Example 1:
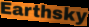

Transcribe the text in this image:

Earthsky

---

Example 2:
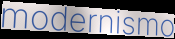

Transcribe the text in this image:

modernismo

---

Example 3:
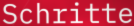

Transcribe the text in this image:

Schritte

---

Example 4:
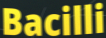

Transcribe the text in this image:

Bacilli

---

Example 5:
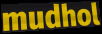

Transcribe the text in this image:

mudhol